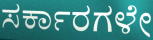
ಸರ್ಕಾರಗಳೇ